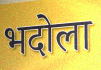
भदोला